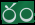
రం